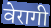
वेरागी